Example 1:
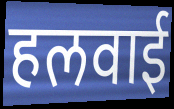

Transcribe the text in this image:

हलवाई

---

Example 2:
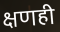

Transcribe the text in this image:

क्षणही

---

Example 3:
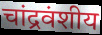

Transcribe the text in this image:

चांद्रवंशीय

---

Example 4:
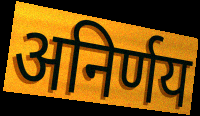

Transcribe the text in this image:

अनिर्णय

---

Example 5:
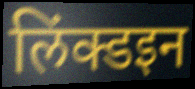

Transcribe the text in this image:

लिंक्डइन